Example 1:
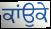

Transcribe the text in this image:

ਕਾਂਉਕੇ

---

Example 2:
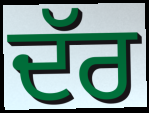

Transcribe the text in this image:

ਦੱਰ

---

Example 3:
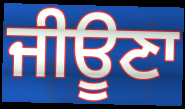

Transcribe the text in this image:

ਜੀਊਣਾ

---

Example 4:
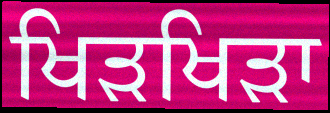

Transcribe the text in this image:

ਖਿੜਖਿੜਾ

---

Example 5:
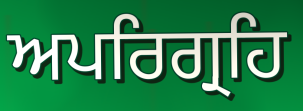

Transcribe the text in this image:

ਅਪਰਿਗ੍ਰਹਿ